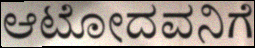
ಆಟೋದವನಿಗೆ